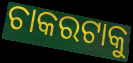
ଚାକରଟାକୁ